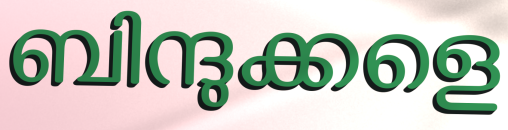
ബിന്ദുക്കളെ